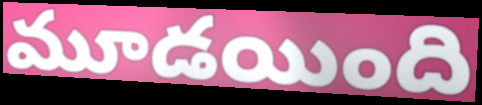
మూడయింది